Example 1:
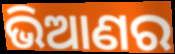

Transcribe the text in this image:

ଭିଆଣର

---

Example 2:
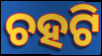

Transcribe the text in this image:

ଚହଟି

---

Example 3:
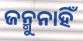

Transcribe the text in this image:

ଜନ୍ମୁନାହିଁ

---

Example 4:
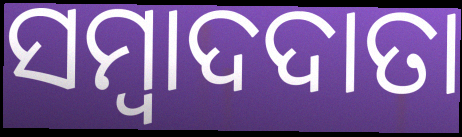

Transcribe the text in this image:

ସମ୍ବାଦଦାତା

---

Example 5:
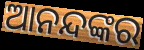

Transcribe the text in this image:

ଆନନ୍ଦଙ୍କର